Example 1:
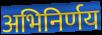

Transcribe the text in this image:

अभिनिर्णय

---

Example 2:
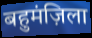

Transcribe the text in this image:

बहुमंज़िला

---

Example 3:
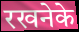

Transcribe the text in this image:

रखनेके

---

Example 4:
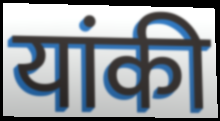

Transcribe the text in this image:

यांकी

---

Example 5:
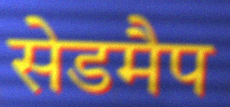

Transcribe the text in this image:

सेडमैप